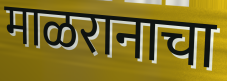
माळरानाचा